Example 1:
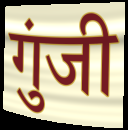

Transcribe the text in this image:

गुंजी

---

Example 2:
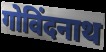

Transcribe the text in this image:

गोविंदनाथ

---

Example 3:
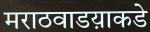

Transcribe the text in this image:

मराठवाडय़ाकडे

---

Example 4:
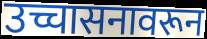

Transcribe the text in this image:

उच्चासनावरून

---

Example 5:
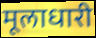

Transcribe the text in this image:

मूलाधारी